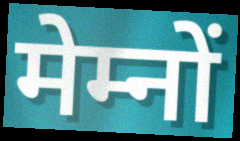
मेम्नों